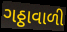
ગઠ્ઠાવાળી